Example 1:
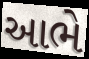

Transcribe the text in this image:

આભે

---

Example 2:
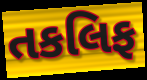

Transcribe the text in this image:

તકલિફ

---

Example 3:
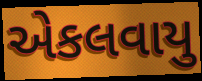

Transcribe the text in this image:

એકલવાયુ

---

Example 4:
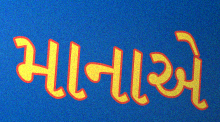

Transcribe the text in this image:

માનાએ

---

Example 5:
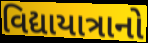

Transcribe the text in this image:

વિદ્યાયાત્રાનો